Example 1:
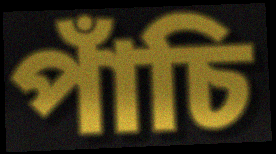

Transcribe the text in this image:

পাঁচি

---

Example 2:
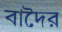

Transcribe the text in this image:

বাদৈর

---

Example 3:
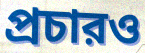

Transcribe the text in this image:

প্রচারও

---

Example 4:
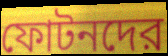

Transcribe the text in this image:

ফোটনদের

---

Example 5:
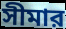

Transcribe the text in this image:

সীমার